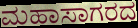
ಮಹಾಸಾಗರದ